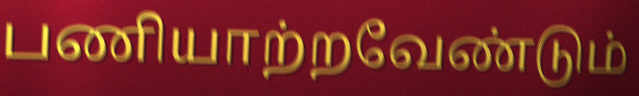
பணியாற்றவேண்டும்